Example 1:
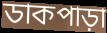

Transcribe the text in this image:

ডাকপাড়া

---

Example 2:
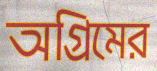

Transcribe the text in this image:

অগ্রিমের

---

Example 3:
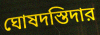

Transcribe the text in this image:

ঘোষদস্তিদার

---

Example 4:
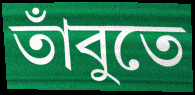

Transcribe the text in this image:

তাঁবুতে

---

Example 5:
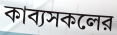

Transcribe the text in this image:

কাব্যসকলের